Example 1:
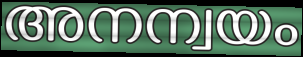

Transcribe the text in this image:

അനന്വയം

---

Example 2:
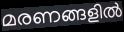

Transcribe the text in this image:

മരണങ്ങളിൽ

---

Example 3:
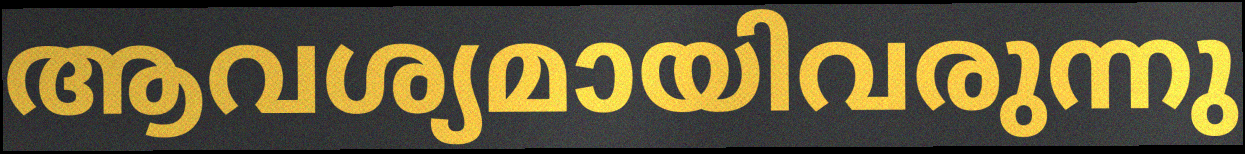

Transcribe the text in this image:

ആവശ്യമായിവരുന്നു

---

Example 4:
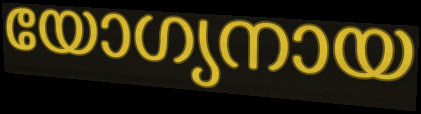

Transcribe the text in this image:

യോഗ്യനായ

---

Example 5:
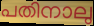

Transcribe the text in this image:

പതിനാലു